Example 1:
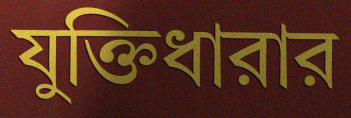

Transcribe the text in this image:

যুক্তিধারার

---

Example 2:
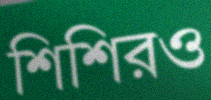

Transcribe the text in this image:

শিশিরও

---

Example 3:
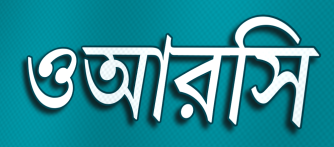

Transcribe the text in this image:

ওআরসি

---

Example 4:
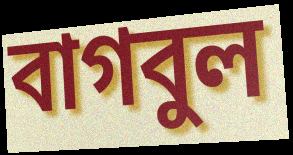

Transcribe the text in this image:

বাগবুল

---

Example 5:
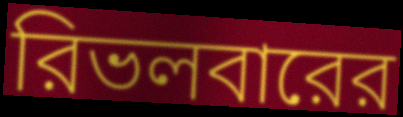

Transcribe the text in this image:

রিভলবারের